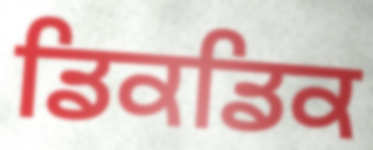
ਡਿਕਡਿਕ